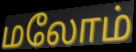
மலோம்